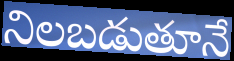
నిలబడుతూనే